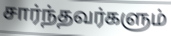
சார்ந்தவர்களும்